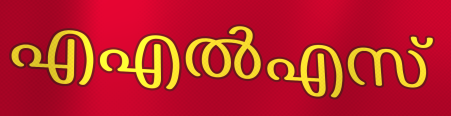
എഎൽഎസ്